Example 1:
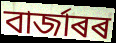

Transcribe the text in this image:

বাৰ্জাৰৰ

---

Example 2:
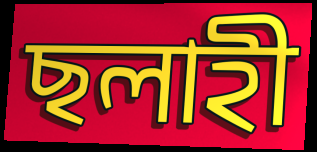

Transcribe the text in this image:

ছলাহী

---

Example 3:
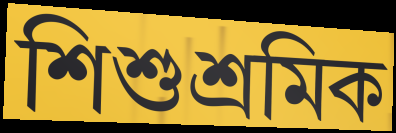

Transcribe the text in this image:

শিশুশ্ৰমিক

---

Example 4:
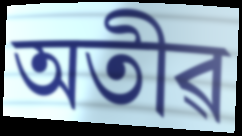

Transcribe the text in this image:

অতীৱ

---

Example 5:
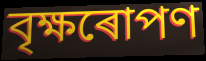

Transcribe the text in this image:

বৃক্ষৰোপণ